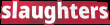
slaughters